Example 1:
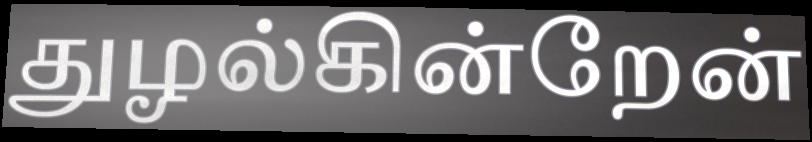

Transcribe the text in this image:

துழல்கின்றேன்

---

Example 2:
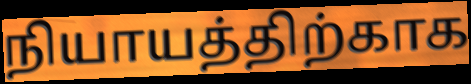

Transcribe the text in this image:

நியாயத்திற்காக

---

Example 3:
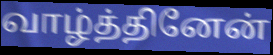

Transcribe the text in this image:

வாழ்த்தினேன்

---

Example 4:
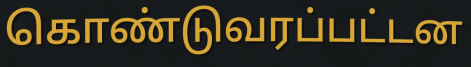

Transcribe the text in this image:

கொண்டுவரப்பட்டன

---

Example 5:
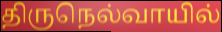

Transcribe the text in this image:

திருநெல்வாயில்